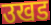
उखड